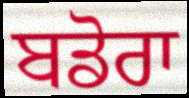
ਬਡੋਰਾ